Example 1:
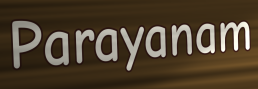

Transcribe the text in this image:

Parayanam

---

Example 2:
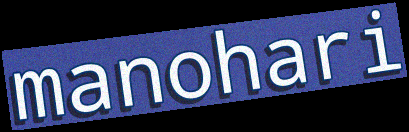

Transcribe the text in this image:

manohari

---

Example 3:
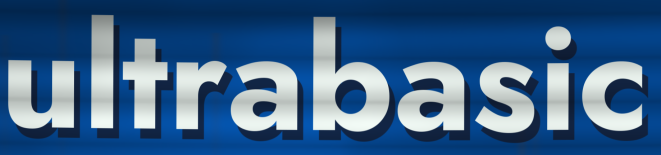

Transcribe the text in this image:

ultrabasic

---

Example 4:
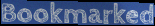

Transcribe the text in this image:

Bookmarked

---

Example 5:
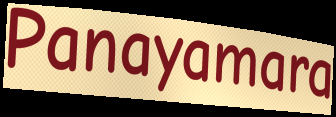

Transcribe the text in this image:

Panayamara